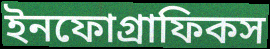
ইনফোগ্রাফিকস